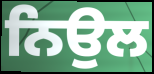
ਨਿਉਲ